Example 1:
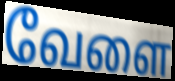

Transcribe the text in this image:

வேளை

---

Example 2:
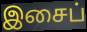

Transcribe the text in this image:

இசைப்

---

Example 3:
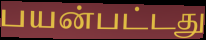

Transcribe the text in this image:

பயன்பட்டது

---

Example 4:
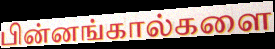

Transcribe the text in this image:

பின்னங்கால்களை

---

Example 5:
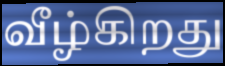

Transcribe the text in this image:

வீழ்கிறது